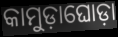
କାମୁଡ଼ାଘୋଡ଼ା